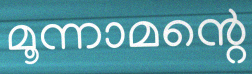
മൂന്നാമന്റെ